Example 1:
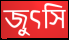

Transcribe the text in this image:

জুৎসি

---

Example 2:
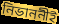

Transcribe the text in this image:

নিভাননীই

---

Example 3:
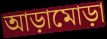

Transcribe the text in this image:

আড়ামোড়া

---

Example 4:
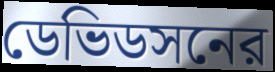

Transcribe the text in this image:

ডেভিডসনের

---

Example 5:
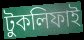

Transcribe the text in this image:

টুকলিফাই